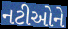
નટીઓને